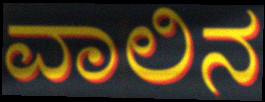
ವಾಲಿನ